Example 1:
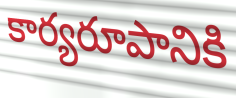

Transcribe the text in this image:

కార్యరూపానికి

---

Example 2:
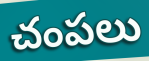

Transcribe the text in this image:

చంపలు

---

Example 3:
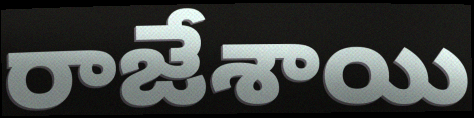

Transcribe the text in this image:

రాజేశాయి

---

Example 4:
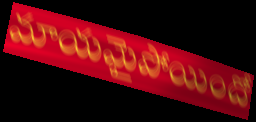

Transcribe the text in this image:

మాయమైపోయిందో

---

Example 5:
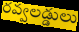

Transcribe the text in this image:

రవ్వలడ్డులు